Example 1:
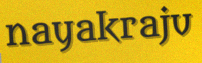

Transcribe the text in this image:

nayakraju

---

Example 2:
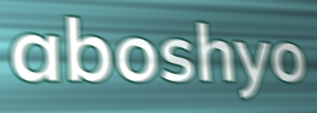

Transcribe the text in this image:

aboshyo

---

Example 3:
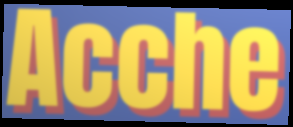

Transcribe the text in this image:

Acche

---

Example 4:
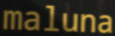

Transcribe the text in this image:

maluna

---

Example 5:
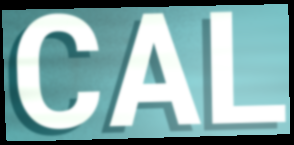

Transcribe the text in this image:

CAL